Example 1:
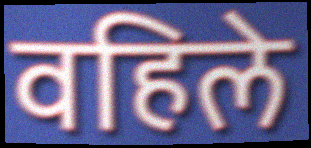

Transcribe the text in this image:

वहिले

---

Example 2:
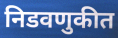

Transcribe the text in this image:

निडवणुकीत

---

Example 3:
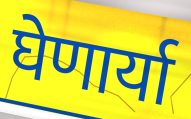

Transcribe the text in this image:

घेणार्या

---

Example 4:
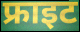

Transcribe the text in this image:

फ्राइट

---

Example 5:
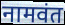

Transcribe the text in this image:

नामवंत